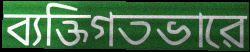
ব্যক্তিগতভাৱে